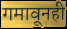
गमावूनही